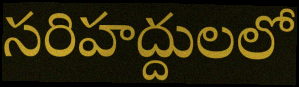
సరిహద్దులలో